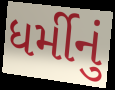
ધર્મીનું